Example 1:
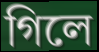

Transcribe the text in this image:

গিলে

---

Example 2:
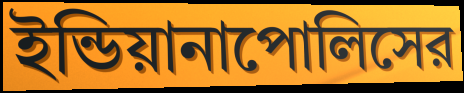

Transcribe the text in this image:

ইন্ডিয়ানাপোলিসের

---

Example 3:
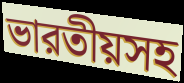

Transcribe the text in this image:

ভারতীয়সহ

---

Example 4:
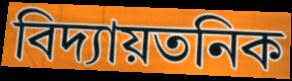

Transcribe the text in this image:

বিদ্যায়তনিক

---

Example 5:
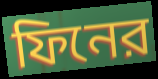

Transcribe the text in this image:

ফিনের